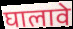
घालावे